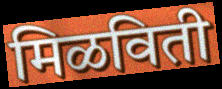
मिळविती